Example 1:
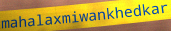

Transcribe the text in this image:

mahalaxmiwankhedkar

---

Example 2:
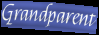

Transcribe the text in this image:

Grandparent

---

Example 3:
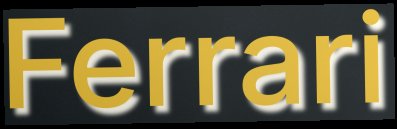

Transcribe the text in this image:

Ferrari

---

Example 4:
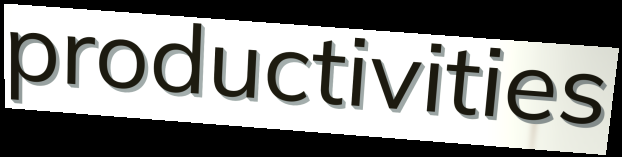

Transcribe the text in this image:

productivities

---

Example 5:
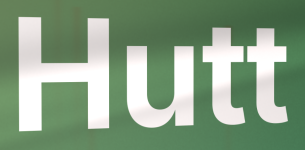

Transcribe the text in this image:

Hutt